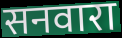
सनवारा